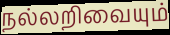
நல்லறிவையும்